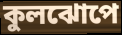
কুলঝোপে